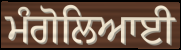
ਮੰਗੋਲਿਆਈ